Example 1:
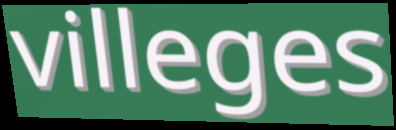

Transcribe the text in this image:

villeges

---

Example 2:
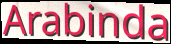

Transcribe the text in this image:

Arabinda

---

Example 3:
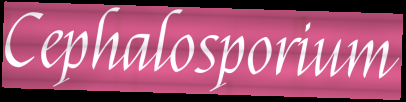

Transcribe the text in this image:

Cephalosporium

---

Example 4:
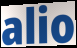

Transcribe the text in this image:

alio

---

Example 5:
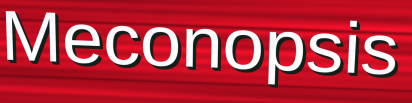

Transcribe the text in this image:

Meconopsis